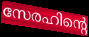
സേരഹിന്റെ